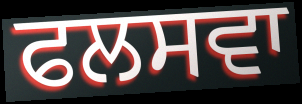
ਫਲਸਵਾ